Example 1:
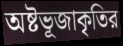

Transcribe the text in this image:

অষ্টভূজাকৃতির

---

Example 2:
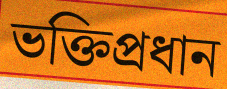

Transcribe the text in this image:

ভক্তিপ্রধান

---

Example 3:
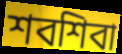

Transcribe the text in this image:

শবশিবা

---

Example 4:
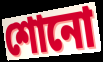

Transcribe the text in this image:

শোনো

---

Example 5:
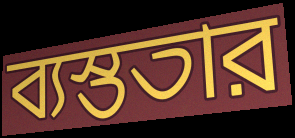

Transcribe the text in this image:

ব্যস্ততার